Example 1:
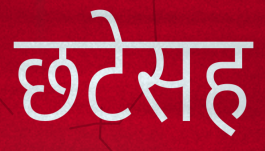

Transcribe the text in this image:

छटेसह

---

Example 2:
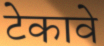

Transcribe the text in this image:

टेकावे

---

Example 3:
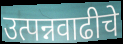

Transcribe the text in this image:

उत्पन्नवाढीचे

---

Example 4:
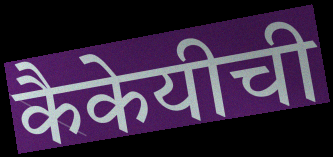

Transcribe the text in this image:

कैकेयीची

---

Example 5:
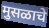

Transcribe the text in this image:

मुसळाचे